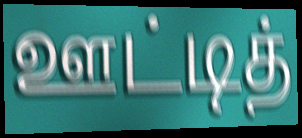
ஊட்டித்